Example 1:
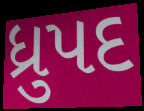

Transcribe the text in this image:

ધ્રુપદ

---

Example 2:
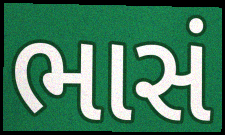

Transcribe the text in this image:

ભાસં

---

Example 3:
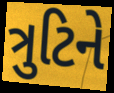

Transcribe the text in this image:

ત્રુટિને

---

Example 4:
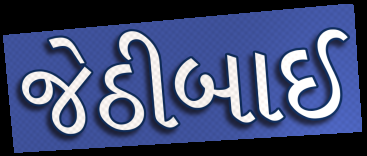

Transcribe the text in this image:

જેઠીબાઈ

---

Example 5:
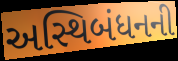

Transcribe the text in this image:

અસ્થિબંધનની